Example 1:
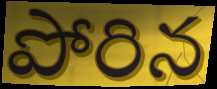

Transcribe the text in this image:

పోరిన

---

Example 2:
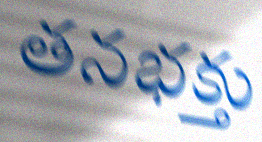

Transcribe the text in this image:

తనభక్తు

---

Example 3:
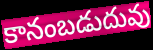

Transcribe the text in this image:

కానంబడుదువు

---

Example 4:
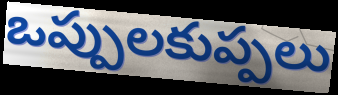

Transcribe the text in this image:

ఒప్పులకుప్పలు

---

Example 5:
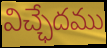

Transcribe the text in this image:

విచ్ఛేదము